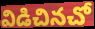
విడిచినచో